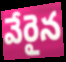
వేరైన